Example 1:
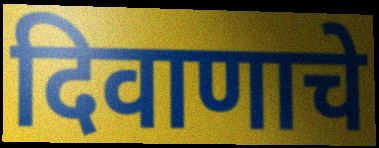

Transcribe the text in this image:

दिवाणाचे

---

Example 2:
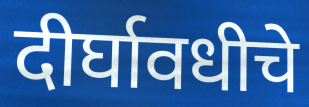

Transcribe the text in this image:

दीर्घावधीचे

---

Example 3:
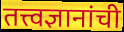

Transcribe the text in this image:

तत्त्वज्ञानांची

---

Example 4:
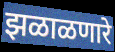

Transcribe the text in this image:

झळाळणारे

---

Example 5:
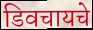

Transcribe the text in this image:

डिवचायचे